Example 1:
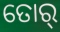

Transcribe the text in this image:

ତୋର୍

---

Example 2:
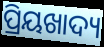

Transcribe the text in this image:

ପ୍ରିୟଖାଦ୍ୟ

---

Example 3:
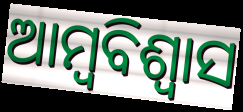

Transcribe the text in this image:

ଆମ୍ବବିଶ୍ଵାସ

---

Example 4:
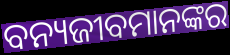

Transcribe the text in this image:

ବନ୍ୟଜୀବମାନଙ୍କର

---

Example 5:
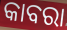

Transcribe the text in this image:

କାବରା